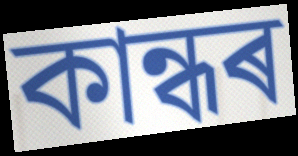
কান্ধৰ